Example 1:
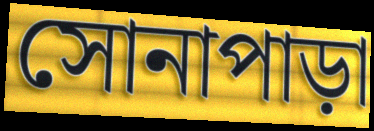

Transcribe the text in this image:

সোনাপাড়া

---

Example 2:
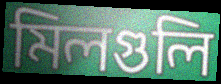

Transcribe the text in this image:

মিলগুলি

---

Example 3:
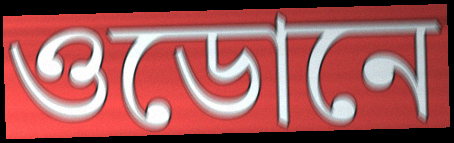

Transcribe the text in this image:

ওডোনে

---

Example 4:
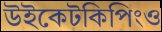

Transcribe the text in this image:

উইকেটকিপিংও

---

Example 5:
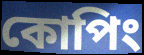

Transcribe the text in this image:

কোপিং